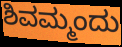
ಶಿವಮ್ಮಂದು